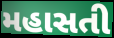
મહાસતી